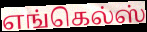
எங்கெல்ஸ்